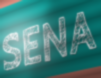
SENA